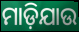
ମାଡ଼ିଯାଉ